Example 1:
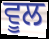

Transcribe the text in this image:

ਵੂਲ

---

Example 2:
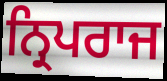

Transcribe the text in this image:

ਨ੍ਰਿਪਰਾਜ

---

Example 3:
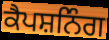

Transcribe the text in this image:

ਕੈਪਸ਼ਨਿੰਗ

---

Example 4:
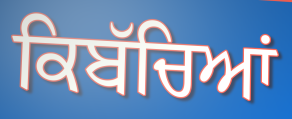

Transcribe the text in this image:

ਕਿਬੱਚਿਆਂ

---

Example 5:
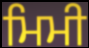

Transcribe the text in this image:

ਮਿਮੀ